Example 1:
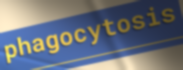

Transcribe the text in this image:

phagocytosis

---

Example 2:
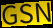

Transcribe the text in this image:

GSN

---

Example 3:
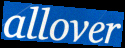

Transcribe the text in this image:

allover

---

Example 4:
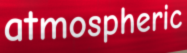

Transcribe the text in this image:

atmospheric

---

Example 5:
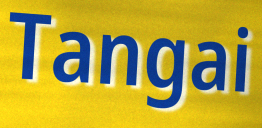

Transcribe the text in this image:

Tangai